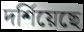
দর্শিয়েছে